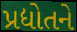
પ્રદ્યોતને